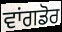
ਵਾਂਗਡੋਰ